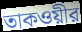
তাকওয়ীর